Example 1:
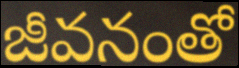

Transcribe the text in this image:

జీవనంతో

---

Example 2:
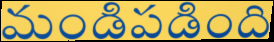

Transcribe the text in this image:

మండిపడింది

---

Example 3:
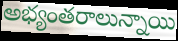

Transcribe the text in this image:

అభ్యంతరాలున్నాయి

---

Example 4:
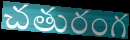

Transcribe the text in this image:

చతురంగ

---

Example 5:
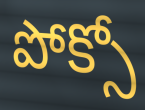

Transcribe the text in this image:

పోక్సో